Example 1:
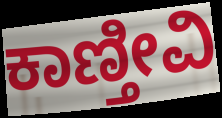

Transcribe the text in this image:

ಕಾಣ್ತೀವಿ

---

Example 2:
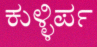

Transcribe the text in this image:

ಕುಳ್ಳಿರ್ಪ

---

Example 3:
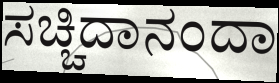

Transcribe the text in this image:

ಸಚ್ಚಿದಾನಂದಾ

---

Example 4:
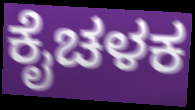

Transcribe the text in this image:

ಕೈಚಳಕ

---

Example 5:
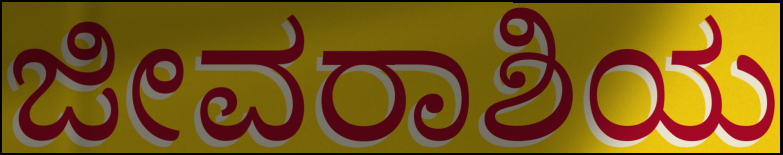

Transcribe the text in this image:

ಜೀವರಾಶಿಯ